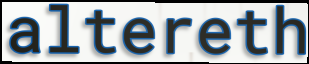
altereth